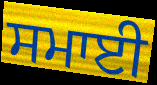
ਸਮਾਈ